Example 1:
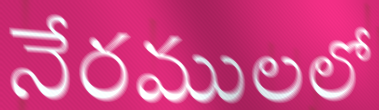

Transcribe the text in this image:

నేరములలో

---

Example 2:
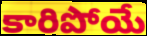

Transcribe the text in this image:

కారిపోయే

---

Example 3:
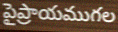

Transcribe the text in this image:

పైప్రాయముగల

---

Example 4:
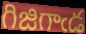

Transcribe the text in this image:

గిజిగాఁడ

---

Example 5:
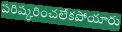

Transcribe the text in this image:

పరిష్కరించలేకపోయారు